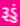
રૂડું